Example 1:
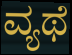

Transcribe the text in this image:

ವ್ಯಥೆ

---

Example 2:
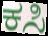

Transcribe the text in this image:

ಕಸಿ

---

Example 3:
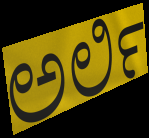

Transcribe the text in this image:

ಅರ್ಲಿ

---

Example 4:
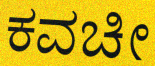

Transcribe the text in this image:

ಕವಚೀ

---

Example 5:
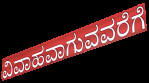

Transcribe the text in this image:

ವಿವಾಹವಾಗುವವರೆಗೆ